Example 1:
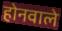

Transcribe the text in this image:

होनवाले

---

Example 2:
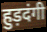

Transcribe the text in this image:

हुड़दंगी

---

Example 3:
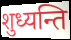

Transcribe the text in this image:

शुध्यन्ति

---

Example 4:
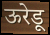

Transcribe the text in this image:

ऊरेडू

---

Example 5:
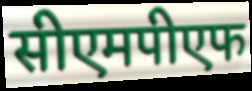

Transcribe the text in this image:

सीएमपीएफ